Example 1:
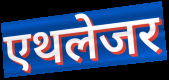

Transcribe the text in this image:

एथलेजर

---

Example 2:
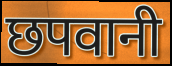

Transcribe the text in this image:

छपवानी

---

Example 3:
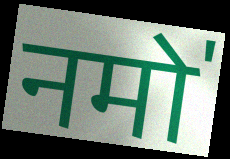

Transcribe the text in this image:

नमो॑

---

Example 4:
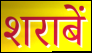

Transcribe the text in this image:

शराबें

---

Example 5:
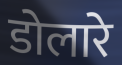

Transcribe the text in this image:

डोलारे